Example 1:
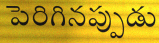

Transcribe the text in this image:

పెరిగినప్పుడు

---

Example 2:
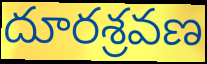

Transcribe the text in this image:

దూరశ్రవణ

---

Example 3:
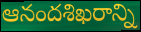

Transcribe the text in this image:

ఆనందశిఖరాన్ని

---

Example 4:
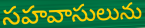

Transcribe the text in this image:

సహవాసులును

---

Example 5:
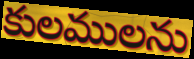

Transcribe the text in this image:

కులములను